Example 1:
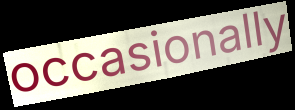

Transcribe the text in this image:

occasionally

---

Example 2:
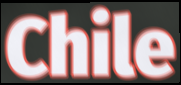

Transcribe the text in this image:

Chile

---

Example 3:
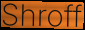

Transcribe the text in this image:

Shroff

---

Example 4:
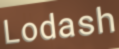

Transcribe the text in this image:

Lodash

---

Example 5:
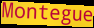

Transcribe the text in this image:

Montegue